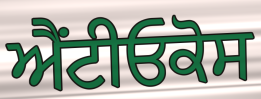
ਐਂਟੀਓਕੋਸ